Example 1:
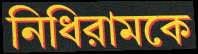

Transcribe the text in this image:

নিধিরামকে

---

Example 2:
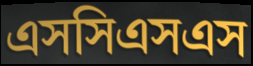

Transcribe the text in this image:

এসসিএসএস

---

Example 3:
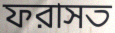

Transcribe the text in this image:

ফরাসত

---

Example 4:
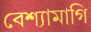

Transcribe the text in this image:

বেশ্যামাগি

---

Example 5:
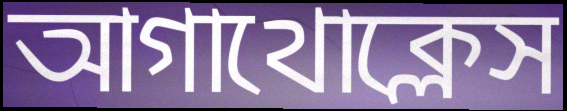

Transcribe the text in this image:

আগাথোক্লেস